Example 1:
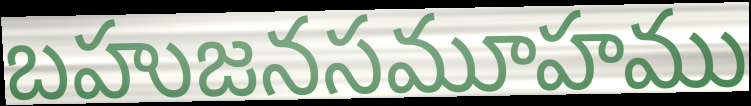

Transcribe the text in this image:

బహుజనసమూహము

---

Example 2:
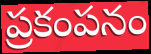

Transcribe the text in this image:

ప్రకంపనం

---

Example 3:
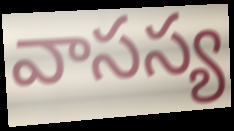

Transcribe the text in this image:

వాసస్య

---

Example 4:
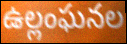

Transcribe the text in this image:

ఉల్లంఘనల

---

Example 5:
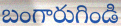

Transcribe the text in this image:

బంగారుగిండి